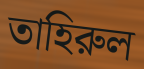
তাহিরুল